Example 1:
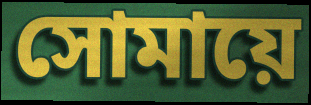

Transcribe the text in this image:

সোমায়ে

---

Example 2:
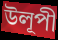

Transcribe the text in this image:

উলূপী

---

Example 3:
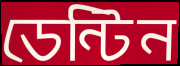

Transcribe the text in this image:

ডেন্টিন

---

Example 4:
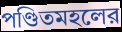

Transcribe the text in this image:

পণ্ডিতমহলের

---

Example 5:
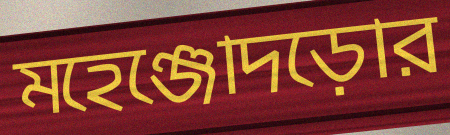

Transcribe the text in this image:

মহেঞ্জোদড়োর